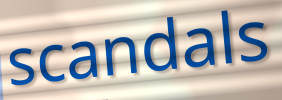
scandals